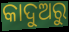
କାଦୁଅରୁ